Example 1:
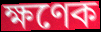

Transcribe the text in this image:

ক্ষণেক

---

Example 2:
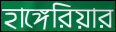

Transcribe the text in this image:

হাঙ্গেরিয়ার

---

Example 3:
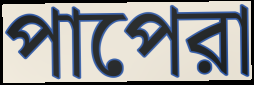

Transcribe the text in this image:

পাপেরা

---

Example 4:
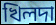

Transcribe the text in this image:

খিলদা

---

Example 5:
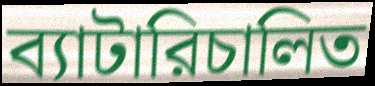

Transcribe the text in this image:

ব্যাটারিচালিত